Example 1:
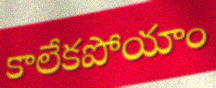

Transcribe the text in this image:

కాలేకపోయాం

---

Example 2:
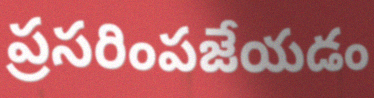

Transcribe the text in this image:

ప్రసరింపజేయడం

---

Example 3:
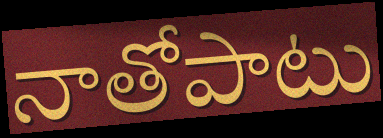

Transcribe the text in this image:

నాతోపాటు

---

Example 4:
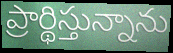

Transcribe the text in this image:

ప్రార్థిస్తున్నాను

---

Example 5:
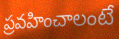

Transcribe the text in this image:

ప్రవహించాలంటే